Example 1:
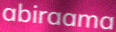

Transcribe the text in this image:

abiraama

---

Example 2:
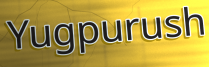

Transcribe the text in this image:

Yugpurush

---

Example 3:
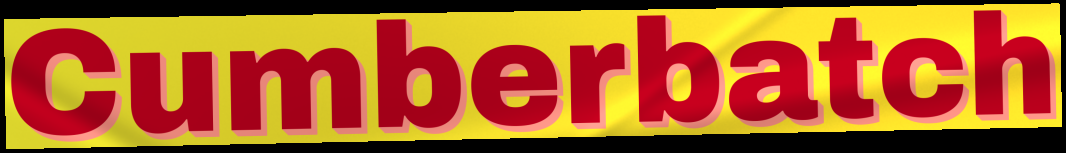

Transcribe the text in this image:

Cumberbatch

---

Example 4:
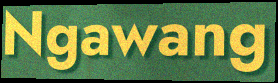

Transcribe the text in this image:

Ngawang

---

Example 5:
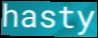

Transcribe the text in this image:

hasty